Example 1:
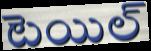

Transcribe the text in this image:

టెయిల్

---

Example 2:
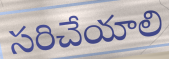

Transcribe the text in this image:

సరిచేయాలి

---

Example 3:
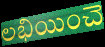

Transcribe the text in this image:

లభియించె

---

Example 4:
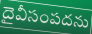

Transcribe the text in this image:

దైవీసంపదను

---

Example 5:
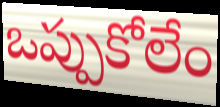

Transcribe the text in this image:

ఒప్పుకోలేం